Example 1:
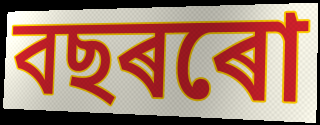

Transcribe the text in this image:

বছৰৰো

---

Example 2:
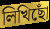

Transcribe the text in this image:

লিখিছোঁ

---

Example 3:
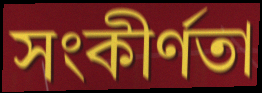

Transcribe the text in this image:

সংকীৰ্ণতা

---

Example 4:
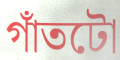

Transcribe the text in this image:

গাঁতটো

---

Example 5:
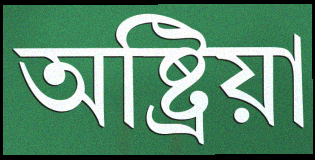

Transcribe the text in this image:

অষ্ট্ৰিয়া